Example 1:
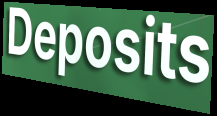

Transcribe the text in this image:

Deposits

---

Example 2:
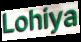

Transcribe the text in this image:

Lohiya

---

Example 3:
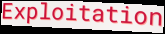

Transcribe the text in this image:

Exploitation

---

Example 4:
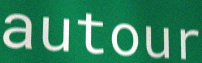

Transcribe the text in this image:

autour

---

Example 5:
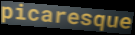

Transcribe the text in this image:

picaresque